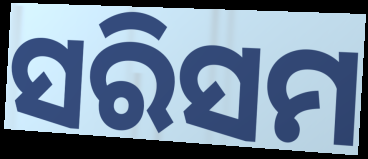
ସରିସମ